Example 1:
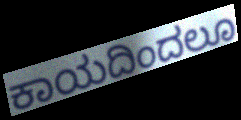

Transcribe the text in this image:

ಕಾಯದಿಂದಲೂ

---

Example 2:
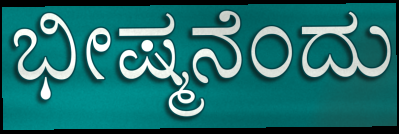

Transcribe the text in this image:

ಭೀಷ್ಮನೆಂದು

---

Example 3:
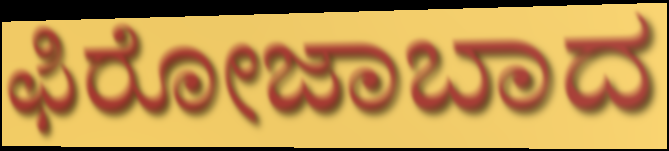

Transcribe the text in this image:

ಫಿರೋಜಾಬಾದ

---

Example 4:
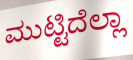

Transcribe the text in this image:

ಮುಟ್ಟಿದೆಲ್ಲಾ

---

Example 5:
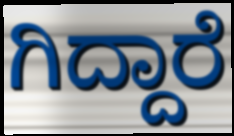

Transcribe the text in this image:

ಗಿದ್ದಾರೆ